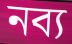
নব্য